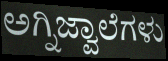
ಅಗ್ನಿಜ್ವಾಲೆಗಳು